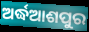
ଅର୍ଦ୍ଧଆଶପୁର